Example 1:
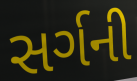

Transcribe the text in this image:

સર્ગની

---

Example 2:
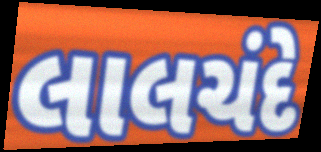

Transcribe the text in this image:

લાલચંદે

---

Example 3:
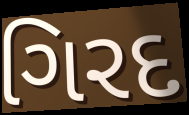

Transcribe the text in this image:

ગિરદ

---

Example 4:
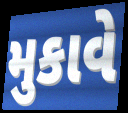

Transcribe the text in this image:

મુકાવે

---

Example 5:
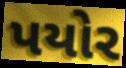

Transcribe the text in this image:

પયોર